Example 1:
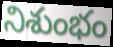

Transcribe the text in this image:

నిశుంభం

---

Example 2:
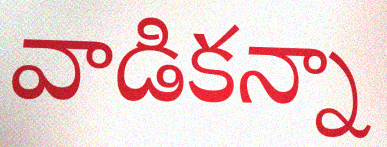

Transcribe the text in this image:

వాడికన్నా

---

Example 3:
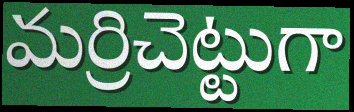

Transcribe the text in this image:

మర్రిచెట్టుగా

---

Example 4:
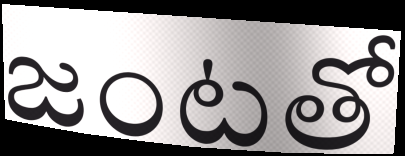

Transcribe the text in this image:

జంటతో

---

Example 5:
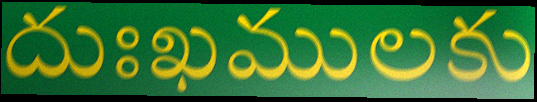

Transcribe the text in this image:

దుఃఖములకు